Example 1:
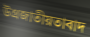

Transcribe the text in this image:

উগ্রজাতীয়তাবাদ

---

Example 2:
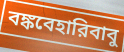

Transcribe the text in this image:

বঙ্কবেহারিবাবু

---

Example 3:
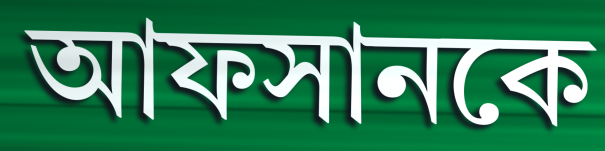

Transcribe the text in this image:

আফসানকে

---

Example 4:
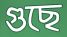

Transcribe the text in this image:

গুছে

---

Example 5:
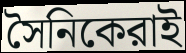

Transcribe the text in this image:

সৈনিকেরাই